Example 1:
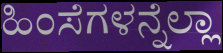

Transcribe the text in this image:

ಹಿಂಸೆಗಳನ್ನೆಲ್ಲಾ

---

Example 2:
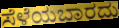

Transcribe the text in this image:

ಸೆಳೆಯಬಾರದು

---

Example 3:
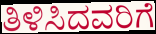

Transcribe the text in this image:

ತಿಳಿಸಿದವರಿಗೆ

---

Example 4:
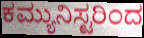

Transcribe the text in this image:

ಕಮ್ಯುನಿಸ್ಟರಿಂದ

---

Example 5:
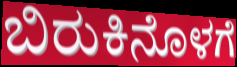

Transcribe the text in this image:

ಬಿರುಕಿನೊಳಗೆ